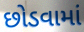
છોડવામાં